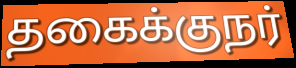
தகைக்குநர்